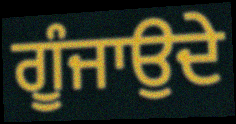
ਗੂੰਜਾਉਦੇ